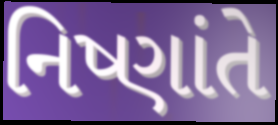
નિષ્ણાંતે